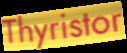
Thyristor